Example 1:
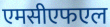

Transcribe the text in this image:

एमसीएफएल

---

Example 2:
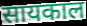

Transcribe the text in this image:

सायकाल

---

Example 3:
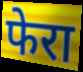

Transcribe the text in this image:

फेरा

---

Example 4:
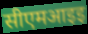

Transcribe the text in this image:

सीएमआइइ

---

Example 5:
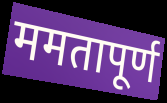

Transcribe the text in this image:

ममतापूर्ण